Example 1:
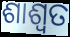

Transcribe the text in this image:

ଶାଶ୍ୱତ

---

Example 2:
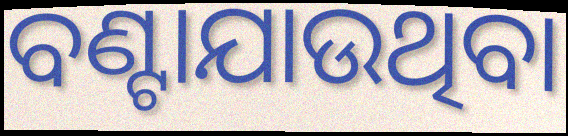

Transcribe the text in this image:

ବଣ୍ଟାଯାଉଥିବା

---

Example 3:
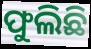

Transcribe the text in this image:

ଫୁଲିଛି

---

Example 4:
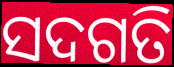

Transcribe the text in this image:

ସଦଗତି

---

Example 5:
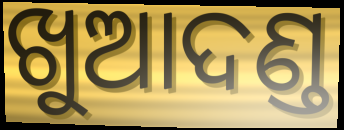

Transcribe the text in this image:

ଖୁଆଦଣ୍ଡ